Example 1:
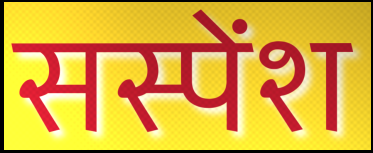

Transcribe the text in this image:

सस्पेंश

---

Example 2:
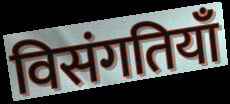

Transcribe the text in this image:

विसंगतियाँ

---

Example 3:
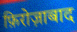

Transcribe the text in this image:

फ़िरोज़ाबाद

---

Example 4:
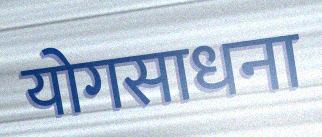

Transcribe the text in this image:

योगसाधना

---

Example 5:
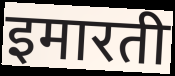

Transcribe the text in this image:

इमारती